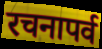
रचनापर्व